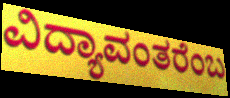
ವಿದ್ಯಾವಂತರೆಂಬ